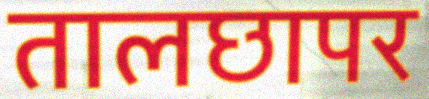
तालछापर